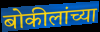
बोकीलांच्या